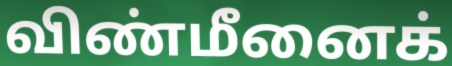
விண்மீனைக்